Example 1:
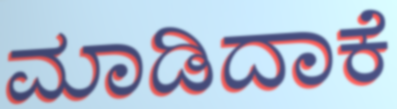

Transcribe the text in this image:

ಮಾಡಿದಾಕೆ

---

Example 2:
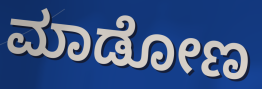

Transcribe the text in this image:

ಮಾಡೋಣ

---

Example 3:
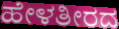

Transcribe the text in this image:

ಹೇಳತೀರದ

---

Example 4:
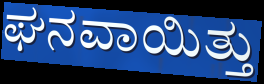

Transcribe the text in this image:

ಘನವಾಯಿತ್ತು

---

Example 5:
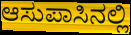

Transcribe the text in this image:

ಆಸುಪಾಸಿನಲ್ಲಿ